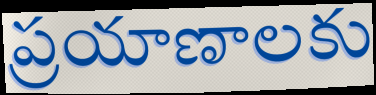
ప్రయాణాలకు